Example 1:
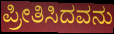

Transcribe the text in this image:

ಪ್ರೀತಿಸಿದವನು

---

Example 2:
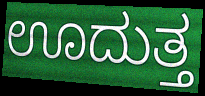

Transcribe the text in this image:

ಊದುತ್ತ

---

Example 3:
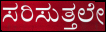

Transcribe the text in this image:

ಸರಿಸುತ್ತಲೇ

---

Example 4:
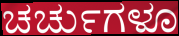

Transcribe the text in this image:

ಚರ್ಚುಗಳೂ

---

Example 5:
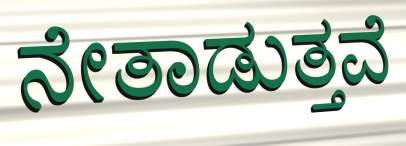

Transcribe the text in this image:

ನೇತಾಡುತ್ತವೆ